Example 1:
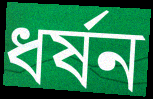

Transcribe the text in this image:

ধর্ষন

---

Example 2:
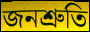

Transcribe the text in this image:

জনশ্রুতি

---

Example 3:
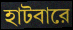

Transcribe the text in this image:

হাটবারে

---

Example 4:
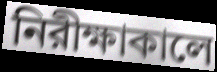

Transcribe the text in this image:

নিরীক্ষাকালে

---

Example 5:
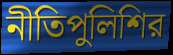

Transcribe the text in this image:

নীতিপুলিশির